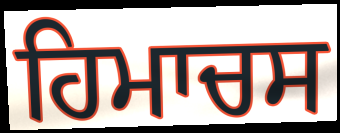
ਹਿਮਾਚਸ